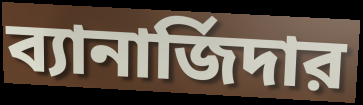
ব্যানার্জিদার